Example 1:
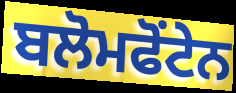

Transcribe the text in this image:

ਬਲੋਮਫੋਂਟੇਨ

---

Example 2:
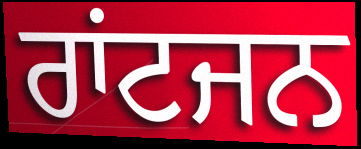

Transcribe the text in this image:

ਰਾਂਟਜਨ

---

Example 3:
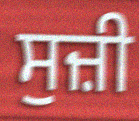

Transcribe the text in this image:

ਸੁਜ਼ੀ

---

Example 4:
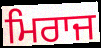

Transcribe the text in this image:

ਮਿਰਾਜ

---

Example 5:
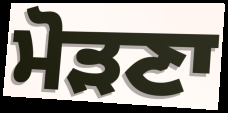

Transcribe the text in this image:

ਮੋੜਣਾ